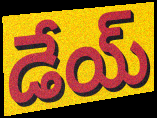
డేయ్